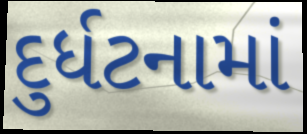
દુર્ધટનામાં